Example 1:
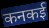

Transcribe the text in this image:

कनकई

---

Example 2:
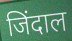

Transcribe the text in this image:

जिंदाल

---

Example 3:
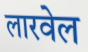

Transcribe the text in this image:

लारवेल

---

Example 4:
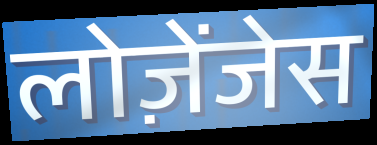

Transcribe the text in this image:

लोज़ेंजेस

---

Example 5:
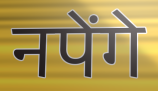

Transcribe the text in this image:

नपेंगे